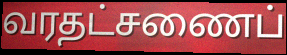
வரதட்சணைப்